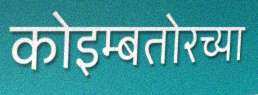
कोइम्बतोरच्या